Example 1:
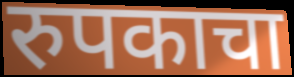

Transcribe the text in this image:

रुपकाचा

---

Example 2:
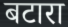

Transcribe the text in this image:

बटारा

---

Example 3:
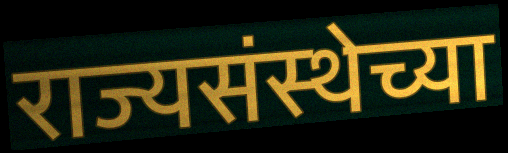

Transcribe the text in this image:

राज्यसंस्थेच्या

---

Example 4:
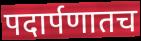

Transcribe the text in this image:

पदार्पणातच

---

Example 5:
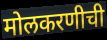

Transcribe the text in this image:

मोलकरणीची